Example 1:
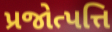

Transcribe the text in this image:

પ્રજોત્પત્તિ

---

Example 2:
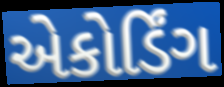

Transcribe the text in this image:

એકોર્ડિંગ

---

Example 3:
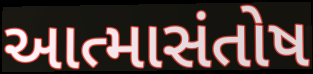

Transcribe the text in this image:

આત્માસંતોષ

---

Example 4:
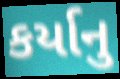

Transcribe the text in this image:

કર્યાનુ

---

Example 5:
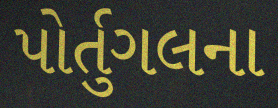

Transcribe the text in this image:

પોર્તુગલના